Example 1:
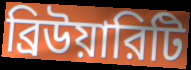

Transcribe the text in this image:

ব্রিউয়ারিটি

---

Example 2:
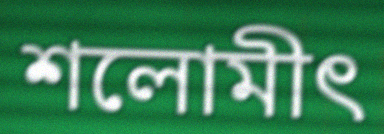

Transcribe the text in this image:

শলোমীৎ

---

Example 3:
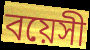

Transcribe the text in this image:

বয়েসী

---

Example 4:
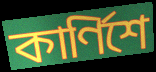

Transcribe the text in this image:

কার্ণিশে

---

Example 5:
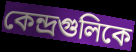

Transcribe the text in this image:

কেন্দ্রগুলিকে